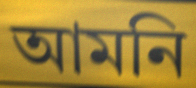
আমনি